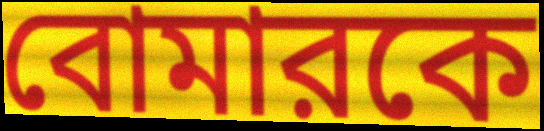
বোমারকে